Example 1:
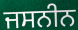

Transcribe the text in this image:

ਜਸਨੀਨ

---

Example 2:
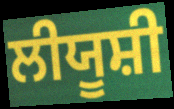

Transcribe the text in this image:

ਲੀਯੂਸ਼ੀ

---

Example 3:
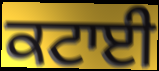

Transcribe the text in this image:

ਕਟਾਈ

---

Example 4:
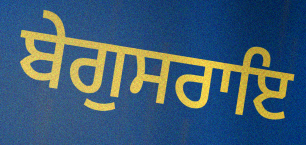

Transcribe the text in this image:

ਬੇਗੁਸਰਾਇ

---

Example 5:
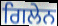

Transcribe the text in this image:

ਗਿਲੇਨ